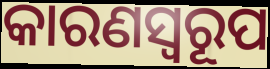
କାରଣସ୍ୱରୂପ